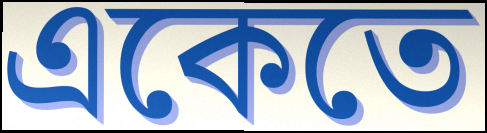
একেতে